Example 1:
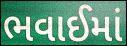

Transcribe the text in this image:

ભવાઈમાં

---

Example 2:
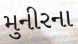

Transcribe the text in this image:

મુનીરના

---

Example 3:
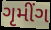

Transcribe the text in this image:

ગૃમીંગ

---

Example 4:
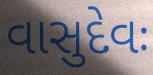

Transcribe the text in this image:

વાસુદેવઃ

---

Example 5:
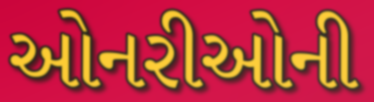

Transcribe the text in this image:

ઓનરીઓની